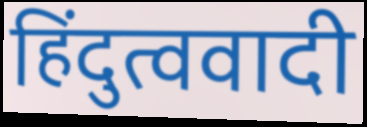
हिंदुत्ववादी